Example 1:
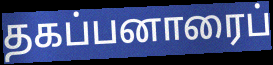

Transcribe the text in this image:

தகப்பனாரைப்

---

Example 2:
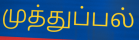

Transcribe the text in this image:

முத்துப்பல்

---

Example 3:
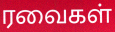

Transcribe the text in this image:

ரவைகள்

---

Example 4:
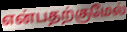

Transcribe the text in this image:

என்பதற்குமேல்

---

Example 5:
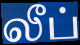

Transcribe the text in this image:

லீப்